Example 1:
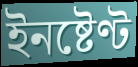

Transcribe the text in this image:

ইনষ্টেণ্ট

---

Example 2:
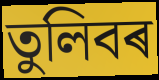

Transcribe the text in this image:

তুলিবৰ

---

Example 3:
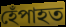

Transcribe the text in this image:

হেঁপাহত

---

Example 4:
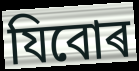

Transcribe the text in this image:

যিবোৰ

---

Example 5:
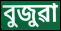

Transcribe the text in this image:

বুজুৱা